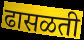
ढासळती